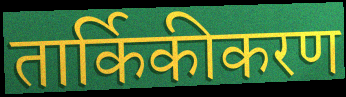
तार्किकीकरण